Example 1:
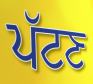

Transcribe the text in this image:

ਪੱਟਣ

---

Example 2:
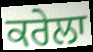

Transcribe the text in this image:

ਕਰੇਲਾ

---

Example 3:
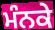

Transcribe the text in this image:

ਮੰਨਕੇ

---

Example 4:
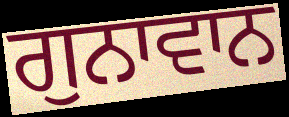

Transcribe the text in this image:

ਗੁਨਾਵਾਨ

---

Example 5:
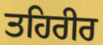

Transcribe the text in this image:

ਤਹਿਰੀਰ